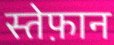
स्तेफ़ान